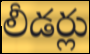
లీడర్లు